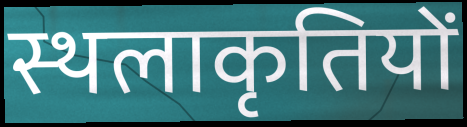
स्थलाकृतियों